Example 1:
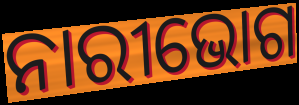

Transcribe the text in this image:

ନାରୀଭୋଗ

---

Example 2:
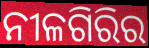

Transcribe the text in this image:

ନୀଳଗିରିର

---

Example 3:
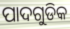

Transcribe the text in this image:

ପାଦଗୁଡିକ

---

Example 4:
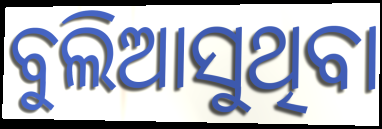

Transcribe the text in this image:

ବୁଲିଆସୁଥିବା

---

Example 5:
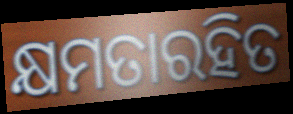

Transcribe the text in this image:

କ୍ଷମତାରହିତ